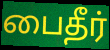
பைதீர்